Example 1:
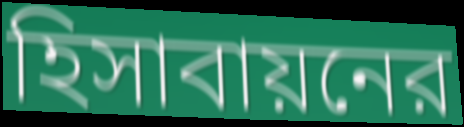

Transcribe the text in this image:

হিসাবায়নের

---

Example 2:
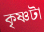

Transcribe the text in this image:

কৃষ্ণটা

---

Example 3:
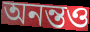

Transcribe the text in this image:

অনন্তও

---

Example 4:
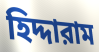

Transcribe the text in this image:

হিদ্দারাম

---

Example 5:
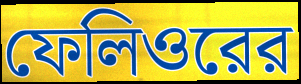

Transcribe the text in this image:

ফেলিওরের